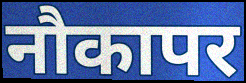
नौकापर